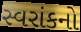
સ્વરાંકનો